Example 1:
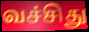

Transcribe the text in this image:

வச்சிது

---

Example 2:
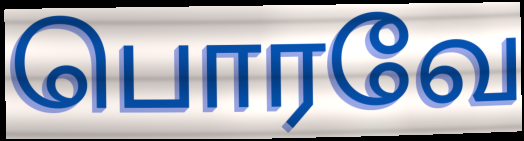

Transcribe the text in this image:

பொரவே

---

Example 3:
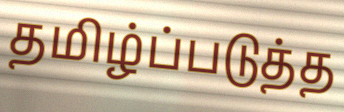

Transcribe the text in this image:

தமிழ்ப்படுத்த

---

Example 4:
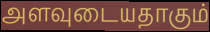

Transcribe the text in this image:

அளவுடையதாகும்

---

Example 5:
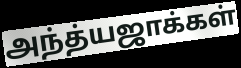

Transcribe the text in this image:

அந்த்யஜாக்கள்